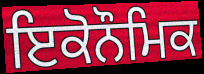
ਇਕੋਨੌਮਿਕ